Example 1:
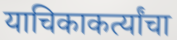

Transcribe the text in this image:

याचिकाकर्त्यांचा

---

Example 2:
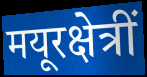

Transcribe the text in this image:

मयूरक्षेत्रीं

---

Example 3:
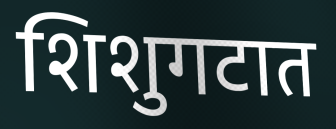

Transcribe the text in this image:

शिशुगटात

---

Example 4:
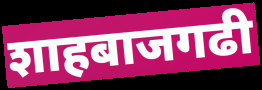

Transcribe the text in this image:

शाहबाजगढी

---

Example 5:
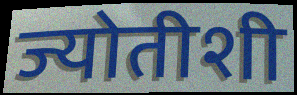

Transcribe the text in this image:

ज्योतीशी